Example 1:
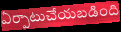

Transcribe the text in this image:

ఏర్పాటుచేయబడింది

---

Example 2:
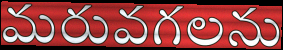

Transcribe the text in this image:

మరువగలను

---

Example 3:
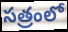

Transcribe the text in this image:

సత్రంలో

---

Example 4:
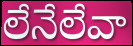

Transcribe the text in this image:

లేనేలేవా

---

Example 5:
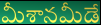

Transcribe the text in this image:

మీశానమీడే